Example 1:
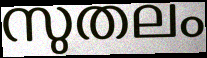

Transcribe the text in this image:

സുതലം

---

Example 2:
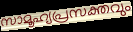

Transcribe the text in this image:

സാമൂഹ്യപ്രസക്തവും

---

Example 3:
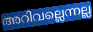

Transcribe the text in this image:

അറിവല്ലെന്നല്ല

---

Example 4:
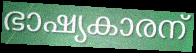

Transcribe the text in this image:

ഭാഷ്യകാരന്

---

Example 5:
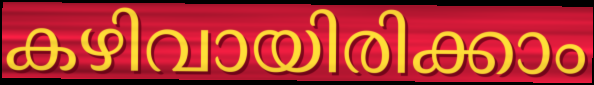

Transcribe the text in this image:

കഴിവായിരിക്കാം